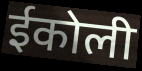
ईकोली